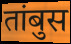
तांबुस